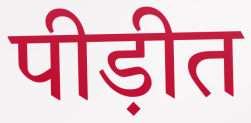
पीड़ीत